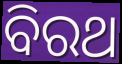
ବିରଥ